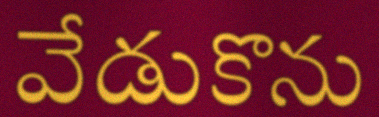
వేడుకొను